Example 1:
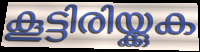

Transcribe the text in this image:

കൂട്ടിരിയ്ക്കുക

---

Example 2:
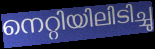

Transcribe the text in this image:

നെറ്റിയിലിടിച്ചു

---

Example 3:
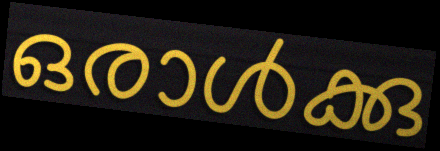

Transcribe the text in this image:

ഒരാൾക്കു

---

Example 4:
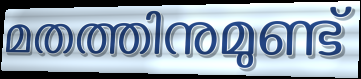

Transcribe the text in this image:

മതത്തിനുമുണ്ട്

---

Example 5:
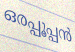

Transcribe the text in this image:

ഒരപ്പൂപ്പൻ